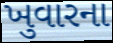
ખુવારના